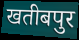
खतीबपुर